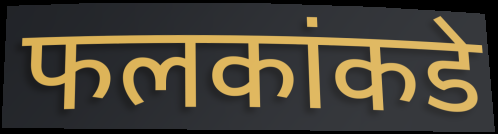
फलकांकडे